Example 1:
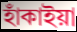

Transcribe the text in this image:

হাঁকাইয়া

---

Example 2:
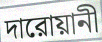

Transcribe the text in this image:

দারোয়ানী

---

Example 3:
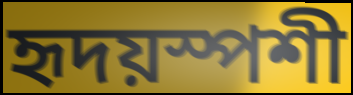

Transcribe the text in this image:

হৃদয়স্পশী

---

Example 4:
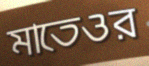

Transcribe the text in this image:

মাতেওর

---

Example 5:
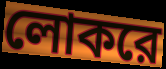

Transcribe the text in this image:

লোকরে